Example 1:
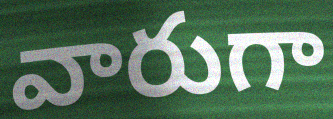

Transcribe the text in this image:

వారుగా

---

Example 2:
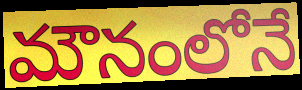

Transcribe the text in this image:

మౌనంలోనే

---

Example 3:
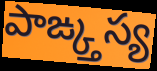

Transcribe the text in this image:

పాఙ్క్తస్య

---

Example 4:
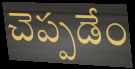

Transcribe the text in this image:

చెప్పడేం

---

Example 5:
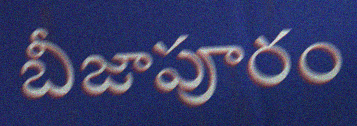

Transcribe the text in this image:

బీజాపూరం